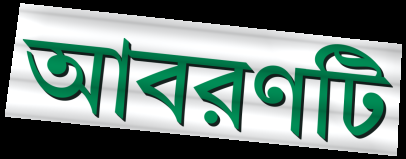
আবরণটি